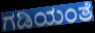
ಗಡಿಯಂತೆ